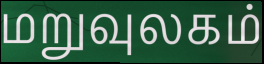
மறுவுலகம்